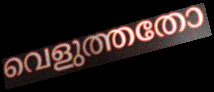
വെളുത്തതോ